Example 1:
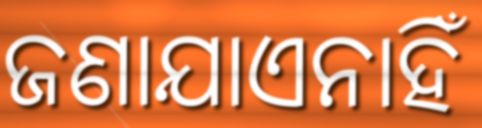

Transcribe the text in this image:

ଜଣାଯାଏନାହିଁ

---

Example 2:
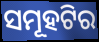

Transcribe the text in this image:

ସମୂହଟିର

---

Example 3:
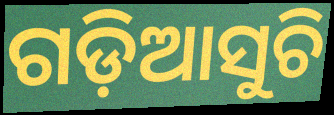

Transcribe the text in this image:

ଗଡ଼ିଆସୁଚି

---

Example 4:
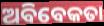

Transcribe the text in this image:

ଅବିବେକତା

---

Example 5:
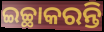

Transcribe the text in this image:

ଇଚ୍ଛାକରନ୍ତି